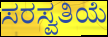
ಸರಸ್ವತಿಯೆ